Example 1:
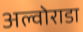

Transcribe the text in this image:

अल्वोराडा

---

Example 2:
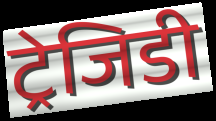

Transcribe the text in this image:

ट्रेजिडी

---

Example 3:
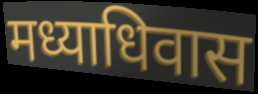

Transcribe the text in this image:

मध्याधिवास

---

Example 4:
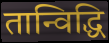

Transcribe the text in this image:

तान्विद्धि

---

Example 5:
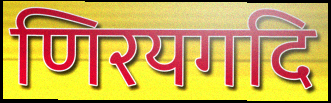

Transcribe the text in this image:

णिरयगदि